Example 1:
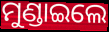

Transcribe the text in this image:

ମୁଣ୍ଡାଇଲେ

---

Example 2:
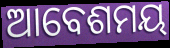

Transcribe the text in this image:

ଆବେଶମୟ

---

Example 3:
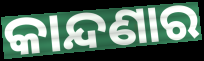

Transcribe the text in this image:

କାନ୍ଦଣାର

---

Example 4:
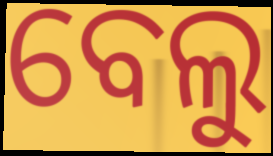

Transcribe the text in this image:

ବେଲୁ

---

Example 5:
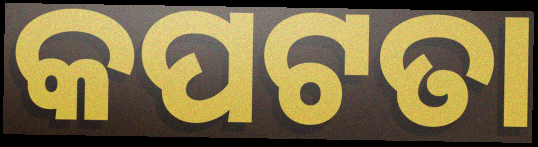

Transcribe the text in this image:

କପଟତା